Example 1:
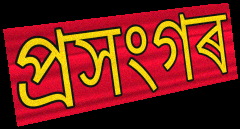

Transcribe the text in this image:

প্ৰসংগৰ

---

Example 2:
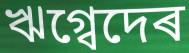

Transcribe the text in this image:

ঋগ্বেদেৰ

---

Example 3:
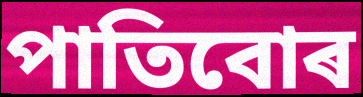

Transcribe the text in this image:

পাতিবোৰ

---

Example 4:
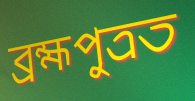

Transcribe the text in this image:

ব্ৰহ্মপুত্ৰত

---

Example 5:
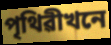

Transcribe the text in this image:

পৃথিৱীখনে